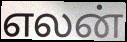
எலன்